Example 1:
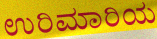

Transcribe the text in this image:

ಉರಿಮಾರಿಯ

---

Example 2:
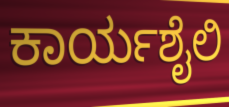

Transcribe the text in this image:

ಕಾರ್ಯಶೈಲಿ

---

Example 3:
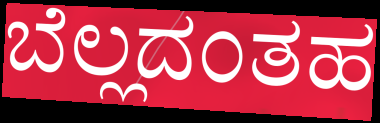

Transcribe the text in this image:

ಬೆಲ್ಲದಂತಹ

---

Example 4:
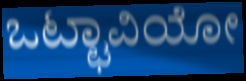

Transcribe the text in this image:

ಒಟ್ಟಾವಿಯೋ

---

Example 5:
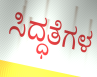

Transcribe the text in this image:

ಸಿದ್ಧತೆಗಳ